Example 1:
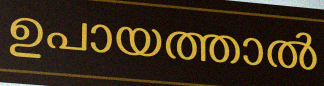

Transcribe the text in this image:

ഉപായത്താൽ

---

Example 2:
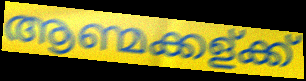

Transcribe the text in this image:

ആണ്മക്കള്ക്ക്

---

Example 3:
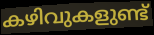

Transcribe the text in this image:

കഴിവുകളുണ്ട്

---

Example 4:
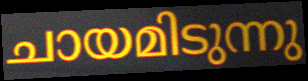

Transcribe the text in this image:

ചായമിടുന്നു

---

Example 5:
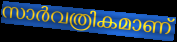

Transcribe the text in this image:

സാർവത്രികമാണ്